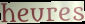
heures